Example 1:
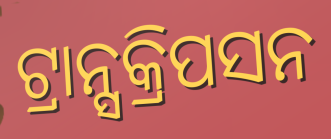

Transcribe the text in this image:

ଟ୍ରାନ୍ସକ୍ରିପସନ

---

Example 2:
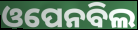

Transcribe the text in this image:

ଓପେନବିଲ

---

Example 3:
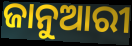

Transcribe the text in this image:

ଜାନୁଆରୀ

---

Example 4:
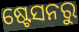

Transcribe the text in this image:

ଷ୍ଟେସନରୁ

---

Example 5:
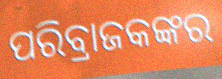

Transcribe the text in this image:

ପରିବ୍ରାଜକଙ୍କର